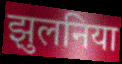
झुलनिया